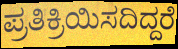
ಪ್ರತಿಕ್ರಿಯಿಸದಿದ್ದರೆ